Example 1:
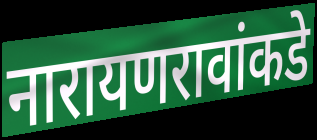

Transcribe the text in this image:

नारायणरावांकडे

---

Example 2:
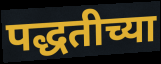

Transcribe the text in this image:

पद्धतीच्या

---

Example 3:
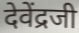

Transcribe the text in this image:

देवेंद्रजी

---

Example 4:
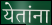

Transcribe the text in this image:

येतांना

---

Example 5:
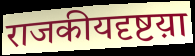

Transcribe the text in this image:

राजकीयदृष्टय़ा